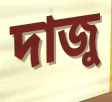
দাজু